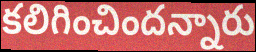
కలిగించిందన్నారు